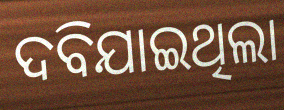
ଦବିଯାଇଥିଲା